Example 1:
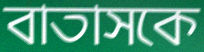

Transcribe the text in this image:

বাতাসকে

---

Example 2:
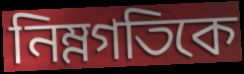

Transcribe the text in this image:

নিম্নগতিকে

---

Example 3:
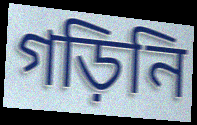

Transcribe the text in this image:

গড়িনি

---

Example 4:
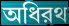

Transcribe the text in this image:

অধিরথ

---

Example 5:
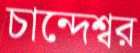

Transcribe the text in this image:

চান্দেশ্বর